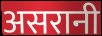
असरानी